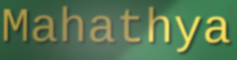
Mahathya